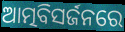
ଆତ୍ମବିସର୍ଜନରେ